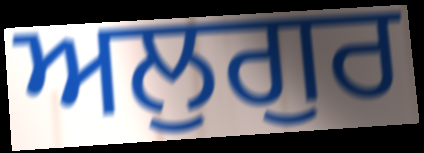
ਅਲੁਗੁਰ